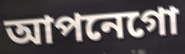
আপনেগো